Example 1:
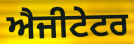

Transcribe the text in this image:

ਐਜੀਟੇਟਰ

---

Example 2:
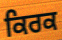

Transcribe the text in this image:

ਕਿਰਕ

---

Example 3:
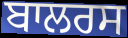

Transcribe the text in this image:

ਬਾਲਰਸ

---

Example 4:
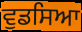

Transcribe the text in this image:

ਵੁਡਸਿਆ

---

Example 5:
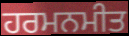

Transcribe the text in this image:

ਹਰਮਨਮੀਤ